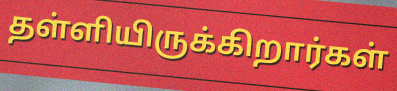
தள்ளியிருக்கிறார்கள்